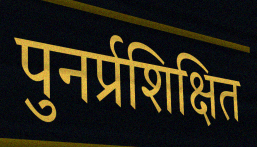
पुनर्प्रशिक्षित